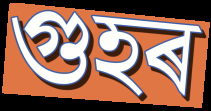
গুহৰ